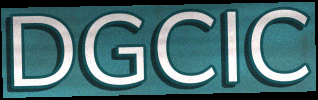
DGCIC